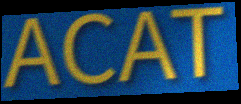
ACAT